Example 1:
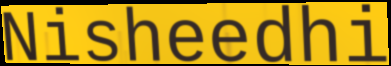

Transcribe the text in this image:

Nisheedhi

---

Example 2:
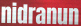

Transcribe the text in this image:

nidranun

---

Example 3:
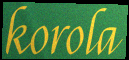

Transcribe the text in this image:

korola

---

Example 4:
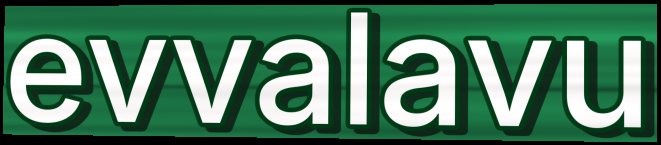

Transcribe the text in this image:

evvalavu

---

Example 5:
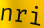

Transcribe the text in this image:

nri